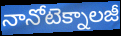
నానోటెక్నాలజీ